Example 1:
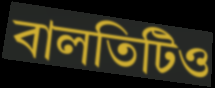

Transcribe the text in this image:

বালতিটিও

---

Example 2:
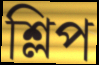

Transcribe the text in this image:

শ্লিপ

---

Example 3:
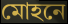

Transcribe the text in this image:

মোহনে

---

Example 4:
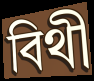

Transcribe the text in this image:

বিথী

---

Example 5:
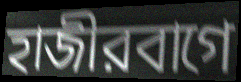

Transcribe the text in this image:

হাজীরবাগে